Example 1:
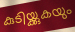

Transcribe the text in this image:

കുടിയ്ക്കുകയും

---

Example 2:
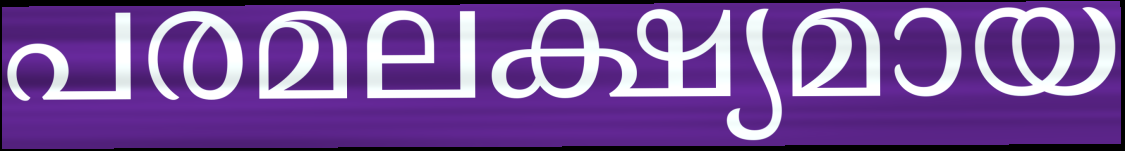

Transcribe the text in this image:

പരമലക്ഷ്യമായ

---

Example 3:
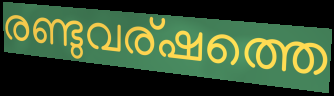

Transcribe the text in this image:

രണ്ടുവര്ഷത്തെ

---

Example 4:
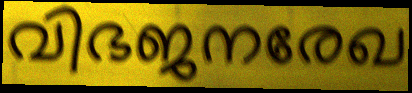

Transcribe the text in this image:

വിഭജനരേഖ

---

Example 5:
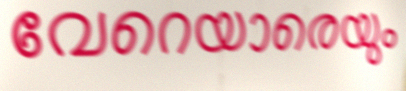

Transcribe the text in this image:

വേറെയാരെയും